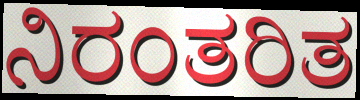
ನಿರಂತರಿತ